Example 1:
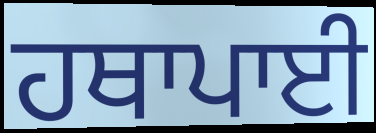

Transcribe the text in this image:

ਹਥਾਪਾਈ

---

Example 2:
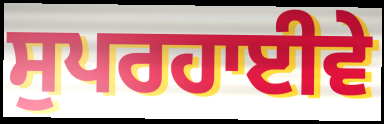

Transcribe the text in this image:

ਸੁਪਰਹਾਈਵੇ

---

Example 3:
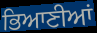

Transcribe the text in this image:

ਭਿਆਣੀਆਂ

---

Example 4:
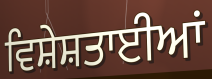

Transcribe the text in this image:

ਵਿਸ਼ੇਸ਼ਤਾਈਆਂ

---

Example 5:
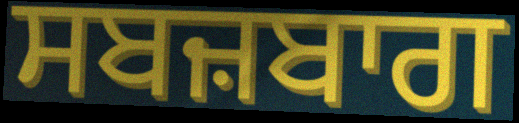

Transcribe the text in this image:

ਸਬਜ਼ਬਾਗ